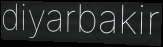
diyarbakir